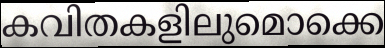
കവിതകളിലുമൊക്കെ